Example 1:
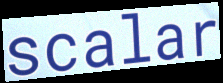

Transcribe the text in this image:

scalar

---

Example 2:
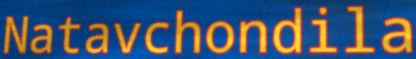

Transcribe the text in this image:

Natavchondila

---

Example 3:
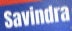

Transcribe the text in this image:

Savindra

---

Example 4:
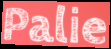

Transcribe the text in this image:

Palie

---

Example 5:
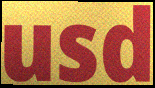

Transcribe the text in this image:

usd